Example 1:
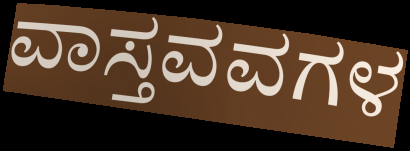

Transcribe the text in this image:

ವಾಸ್ತವವಗಳ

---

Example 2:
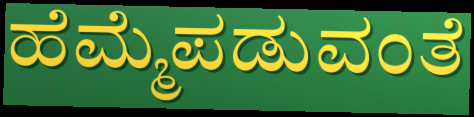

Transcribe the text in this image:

ಹೆಮ್ಮೆಪಡುವಂತೆ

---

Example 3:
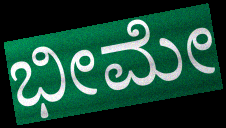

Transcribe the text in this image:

ಭೀಮೇ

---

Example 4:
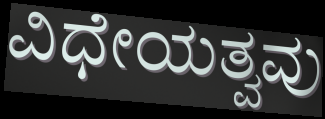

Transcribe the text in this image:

ವಿಧೇಯತ್ವವು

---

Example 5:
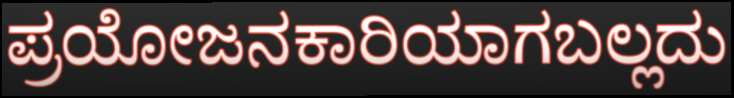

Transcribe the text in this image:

ಪ್ರಯೋಜನಕಾರಿಯಾಗಬಲ್ಲದು